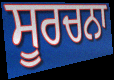
ਸੂਰਚਨਾ